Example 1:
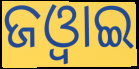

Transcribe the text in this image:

ଜଓ୍ବାଇ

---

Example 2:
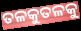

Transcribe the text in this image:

ତଳକୁତଳକୁ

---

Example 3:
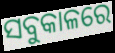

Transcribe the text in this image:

ସବୁକାଳରେ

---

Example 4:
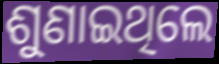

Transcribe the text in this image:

ଶୁଣାଇଥିଲେ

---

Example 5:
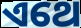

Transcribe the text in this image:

ଏଥେ